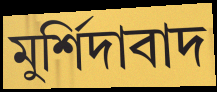
মুর্শিদাবাদ